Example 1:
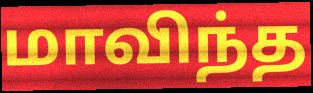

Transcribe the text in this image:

மாவிந்த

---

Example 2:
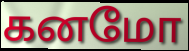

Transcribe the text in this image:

கனமோ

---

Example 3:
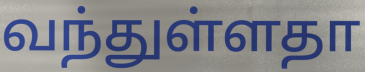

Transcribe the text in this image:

வந்துள்ளதா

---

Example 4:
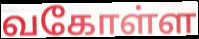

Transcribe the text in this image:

வகோள்ள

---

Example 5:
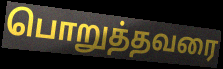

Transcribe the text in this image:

பொறுத்தவரை